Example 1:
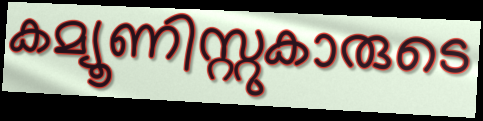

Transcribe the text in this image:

കമ്യൂണിസ്റ്റുകാരുടെ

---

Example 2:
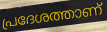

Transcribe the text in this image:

പ്രദേശത്താണ്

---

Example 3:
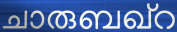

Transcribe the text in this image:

ചാരുബഖ്റ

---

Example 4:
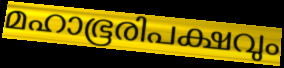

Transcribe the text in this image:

മഹാഭൂരിപക്ഷവും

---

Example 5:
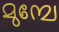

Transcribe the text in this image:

മുമ്പേ